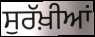
ਸੁਰੱਖ਼ੀਆਂ